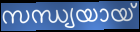
സന്ധ്യയായ്